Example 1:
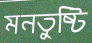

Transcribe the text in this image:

মনতুষ্টি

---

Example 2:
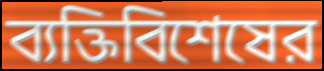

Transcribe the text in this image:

ব্যক্তিবিশেষের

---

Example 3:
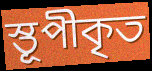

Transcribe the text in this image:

স্তূপীকৃত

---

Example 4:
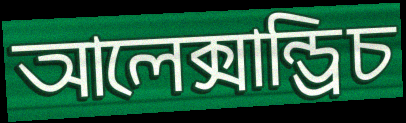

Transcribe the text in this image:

আলেক্সান্ড্রিচ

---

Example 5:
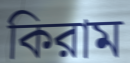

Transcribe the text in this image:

কিরাম